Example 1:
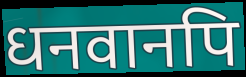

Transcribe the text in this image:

धनवानपि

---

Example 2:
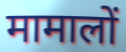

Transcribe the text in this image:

मामालों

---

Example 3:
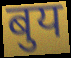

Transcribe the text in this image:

बुय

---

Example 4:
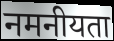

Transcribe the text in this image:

नमनीयता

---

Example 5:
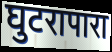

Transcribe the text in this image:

घुटरापारा